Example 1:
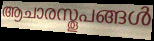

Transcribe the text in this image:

ആചാരസ്തൂപങ്ങൾ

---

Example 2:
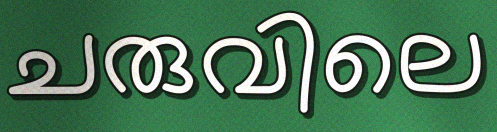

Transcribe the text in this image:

ചരുവിലെ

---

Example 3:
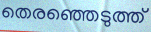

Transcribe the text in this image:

തെരഞ്ഞെടുത്ത്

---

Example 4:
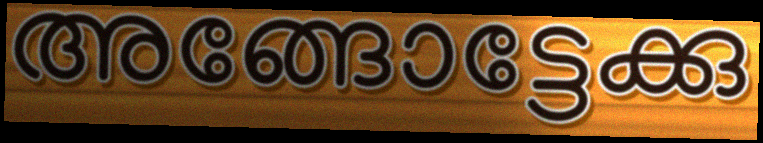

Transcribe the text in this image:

അങ്ങോട്ടേക്കു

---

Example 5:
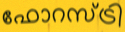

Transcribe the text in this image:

ഫോറസ്ട്രി